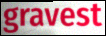
gravest